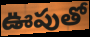
ఊపుతో